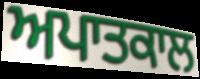
ਅਪਾਤਕਾਲ